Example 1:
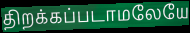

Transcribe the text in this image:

திறக்கப்படாமலேயே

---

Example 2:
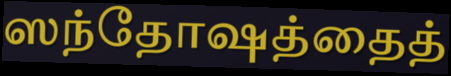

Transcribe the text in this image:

ஸந்தோஷத்தைத்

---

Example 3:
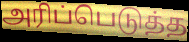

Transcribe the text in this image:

அரிப்பெடுத்த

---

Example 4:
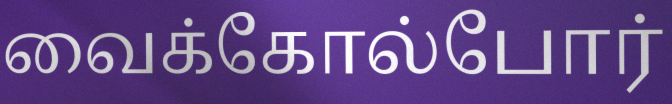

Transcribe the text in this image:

வைக்கோல்போர்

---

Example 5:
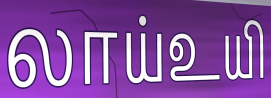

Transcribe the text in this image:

லாய்உயி